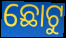
ଛୋଟୁ